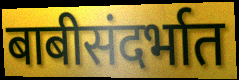
बाबीसंदर्भात